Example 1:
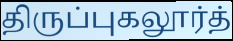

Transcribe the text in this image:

திருப்புகலூர்த்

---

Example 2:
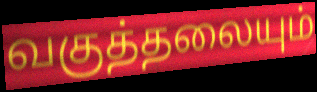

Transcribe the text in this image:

வகுத்தலையும்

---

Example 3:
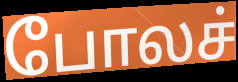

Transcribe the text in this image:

போலச்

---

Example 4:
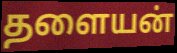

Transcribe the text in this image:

தளையன்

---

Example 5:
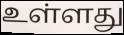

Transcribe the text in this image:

உள்ளது